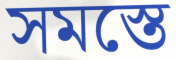
সমস্তে